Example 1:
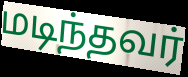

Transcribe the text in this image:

மடிந்தவர்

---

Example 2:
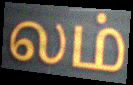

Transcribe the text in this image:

லம்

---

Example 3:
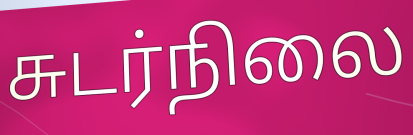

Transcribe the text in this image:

சுடர்நிலை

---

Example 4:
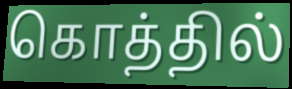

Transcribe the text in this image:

கொத்தில்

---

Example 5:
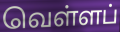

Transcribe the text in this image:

வெள்ளப்